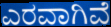
ಎರವಾಗಿವೆ